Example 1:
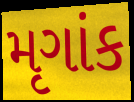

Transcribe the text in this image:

મૃગાંક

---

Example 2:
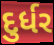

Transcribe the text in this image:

દુર્ધર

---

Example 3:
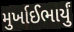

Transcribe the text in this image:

મુર્ખાઈભાર્યું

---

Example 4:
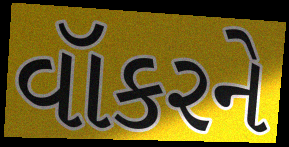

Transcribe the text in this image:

વૉકરને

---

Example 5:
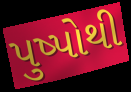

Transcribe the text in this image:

પુષ્પોથી